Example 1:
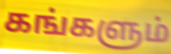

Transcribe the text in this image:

கங்களும்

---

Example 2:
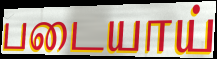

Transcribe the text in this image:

படையாய்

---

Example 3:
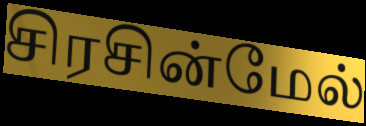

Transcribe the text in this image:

சிரசின்மேல்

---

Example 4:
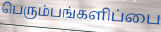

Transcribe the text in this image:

பெரும்பங்களிப்பை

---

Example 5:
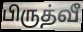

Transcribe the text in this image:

பிருத்வீ